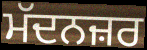
ਮੱਦਨਜ਼ਰ